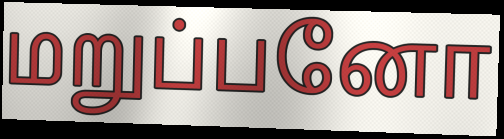
மறுப்பனோ